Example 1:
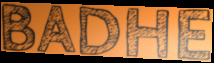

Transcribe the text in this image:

BADHE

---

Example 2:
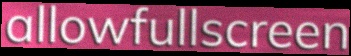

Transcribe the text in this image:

allowfullscreen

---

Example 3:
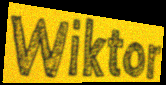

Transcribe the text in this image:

Wiktor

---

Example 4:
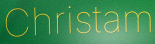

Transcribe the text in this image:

Christam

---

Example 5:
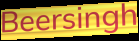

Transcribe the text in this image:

Beersingh